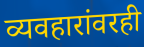
व्यवहारांवरही